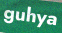
guhya